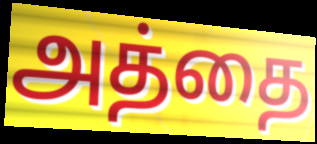
அத்தை